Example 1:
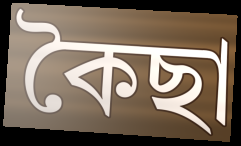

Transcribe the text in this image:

কৈছা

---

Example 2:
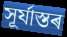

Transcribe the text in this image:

সূৰ্যাস্তৰ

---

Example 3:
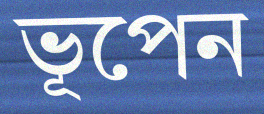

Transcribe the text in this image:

ভূপেন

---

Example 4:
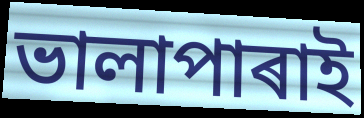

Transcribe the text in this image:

ভালাপাৰাই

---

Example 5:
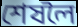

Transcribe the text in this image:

শেষলৈ